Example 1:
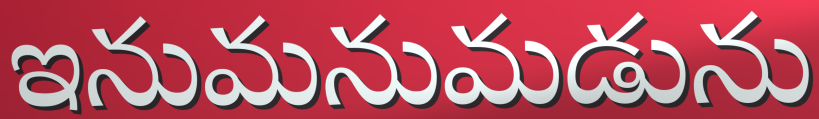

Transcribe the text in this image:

ఇనుమనుమడును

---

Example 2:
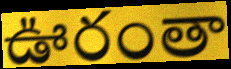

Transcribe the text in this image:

ఊరంతా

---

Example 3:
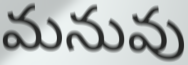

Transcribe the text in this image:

మనువు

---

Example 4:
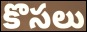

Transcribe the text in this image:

కొసలు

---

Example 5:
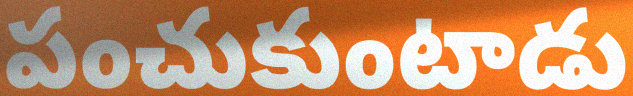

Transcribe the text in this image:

పంచుకుంటాడు